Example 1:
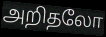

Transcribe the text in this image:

அறிதலோ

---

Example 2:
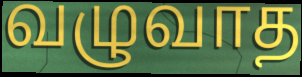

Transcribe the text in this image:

வழுவாத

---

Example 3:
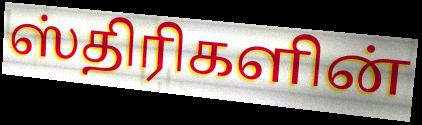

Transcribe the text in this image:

ஸ்திரிகளின்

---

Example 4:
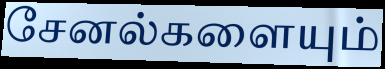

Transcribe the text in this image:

சேனல்களையும்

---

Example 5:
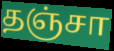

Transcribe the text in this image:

தஞ்சா